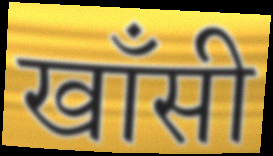
खाँसी